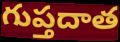
గుప్తదాత